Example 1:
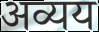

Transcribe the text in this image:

अव्यय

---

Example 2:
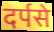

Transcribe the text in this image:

दर्पसे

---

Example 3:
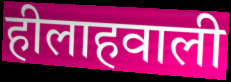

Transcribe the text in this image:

हीलाहवाली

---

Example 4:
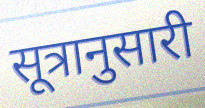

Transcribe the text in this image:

सूत्रानुसारी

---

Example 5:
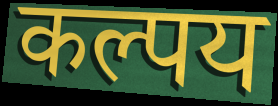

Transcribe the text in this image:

कल्पय